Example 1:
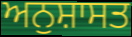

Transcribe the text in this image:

ਅਨੁਸ਼ਾਸਤ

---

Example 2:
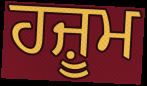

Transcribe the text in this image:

ਹਜ਼ੂਮ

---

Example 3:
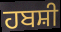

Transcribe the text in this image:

ਹਬਸ਼ੀ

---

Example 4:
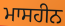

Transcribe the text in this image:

ਮਾਸਹੀਨ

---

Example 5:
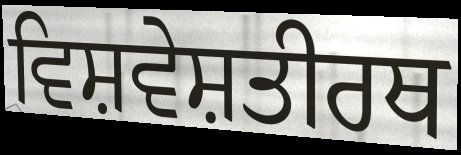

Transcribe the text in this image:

ਵਿਸ਼ਵੇਸ਼ਤੀਰਥ